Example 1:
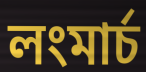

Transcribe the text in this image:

লংমার্চ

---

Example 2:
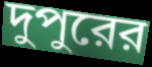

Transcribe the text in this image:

দুপুরের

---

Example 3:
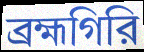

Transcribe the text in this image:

ব্রহ্মগিরি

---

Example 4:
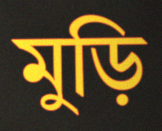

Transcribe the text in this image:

মুড়ি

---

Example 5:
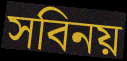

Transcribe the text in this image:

সবিনয়